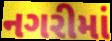
નગરીમાં